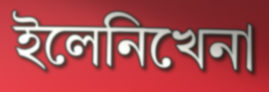
ইলেনিখেনা